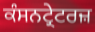
ਕੰਸਨਟ੍ਰੇਟਰਜ਼